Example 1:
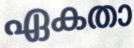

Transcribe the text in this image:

ഏകതാ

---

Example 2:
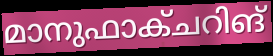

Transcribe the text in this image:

മാനുഫാക്ചറിങ്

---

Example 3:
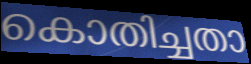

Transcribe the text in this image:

കൊതിച്ചതാ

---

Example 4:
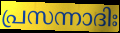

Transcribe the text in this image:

പ്രസന്നാദിഃ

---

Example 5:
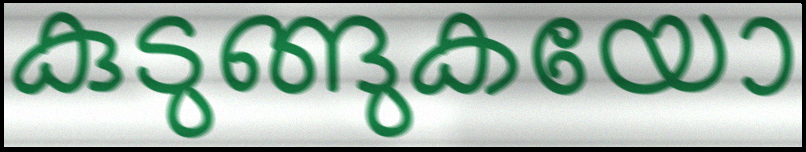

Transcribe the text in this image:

കുടുങ്ങുകയോ